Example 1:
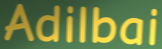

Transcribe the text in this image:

Adilbai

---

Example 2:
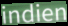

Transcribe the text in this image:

indien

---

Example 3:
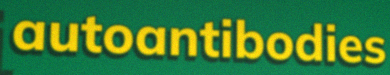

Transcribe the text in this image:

autoantibodies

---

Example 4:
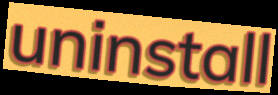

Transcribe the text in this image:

uninstall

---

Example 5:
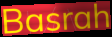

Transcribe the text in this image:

Basrah